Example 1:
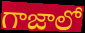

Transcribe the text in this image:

గాజాలో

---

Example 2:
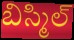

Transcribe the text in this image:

బిస్మిల్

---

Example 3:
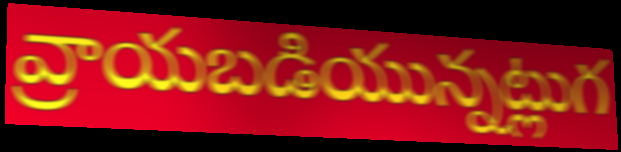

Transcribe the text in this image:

వ్రాయబడియున్నట్లుగ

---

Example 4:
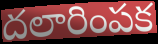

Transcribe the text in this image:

దలారింపక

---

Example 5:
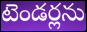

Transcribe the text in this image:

టెండర్లను